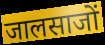
जालसाजों